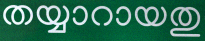
തയ്യാറായതു